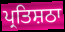
ਪ੍ਰਤਿਸ਼ਠਾ